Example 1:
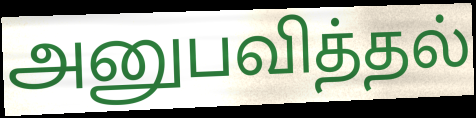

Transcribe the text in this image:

அனுபவித்தல்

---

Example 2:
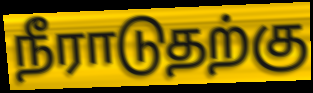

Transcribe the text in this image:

நீராடுதற்கு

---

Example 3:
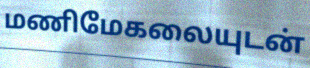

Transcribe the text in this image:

மணிமேகலையுடன்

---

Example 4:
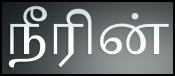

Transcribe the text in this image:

நீரின்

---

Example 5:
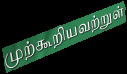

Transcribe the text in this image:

முற்கூறியவற்றுள்